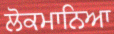
ਲੋਕਮਾਨਿਆ